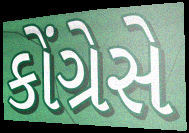
કોંગ્રેસે